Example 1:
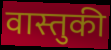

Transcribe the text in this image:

वास्तुकी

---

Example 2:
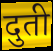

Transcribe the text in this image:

दुती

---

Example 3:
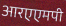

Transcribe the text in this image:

आरएएमपी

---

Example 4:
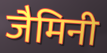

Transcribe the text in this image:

जैमिनी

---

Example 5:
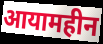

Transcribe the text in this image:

आयामहीन